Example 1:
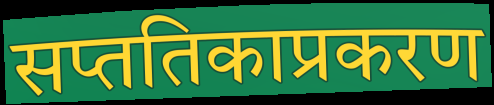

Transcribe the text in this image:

सप्ततिकाप्रकरण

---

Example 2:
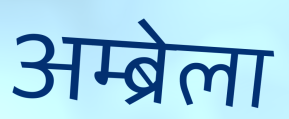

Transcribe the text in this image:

अम्‍ब्रेला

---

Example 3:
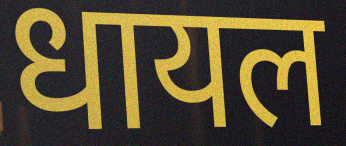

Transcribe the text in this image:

धायल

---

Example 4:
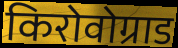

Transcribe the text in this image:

किरोवोग्राड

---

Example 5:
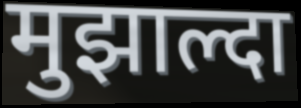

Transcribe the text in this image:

मुझाल्दा